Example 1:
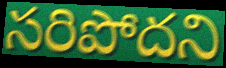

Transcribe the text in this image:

సరిపోదని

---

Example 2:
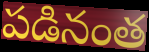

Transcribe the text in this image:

పడినంత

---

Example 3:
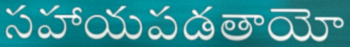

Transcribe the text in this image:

సహాయపడతాయో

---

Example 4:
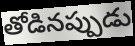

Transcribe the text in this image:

తోడినప్పుడు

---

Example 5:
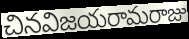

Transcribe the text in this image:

చినవిజయరామరాజు